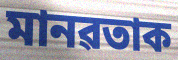
মানৱতাক